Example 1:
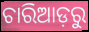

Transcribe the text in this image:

ଚାରିଆଡ଼ରୁ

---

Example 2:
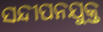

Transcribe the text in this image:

ସନ୍ଦୀପନଯୁକ୍ତ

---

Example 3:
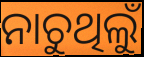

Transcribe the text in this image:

ନାଚୁଥିଲୁଁ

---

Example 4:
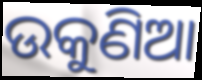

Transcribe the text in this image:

ଉକୁଣିଆ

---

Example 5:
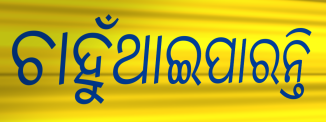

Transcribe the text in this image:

ଚାହୁଁଥାଇପାରନ୍ତି